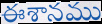
ఈశానము